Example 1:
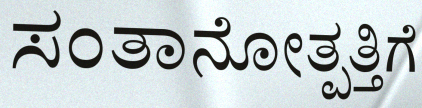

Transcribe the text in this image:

ಸಂತಾನೋತ್ಪತ್ತಿಗೆ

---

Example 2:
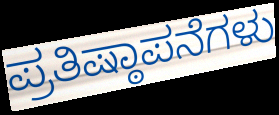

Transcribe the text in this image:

ಪ್ರತಿಷ್ಠಾಪನೆಗಳು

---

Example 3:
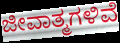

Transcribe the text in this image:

ಜೀವಾತ್ಮಗಳಿವೆ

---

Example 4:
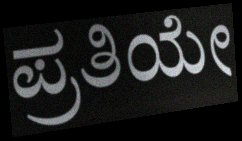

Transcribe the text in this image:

ಪ್ರತಿಯೇ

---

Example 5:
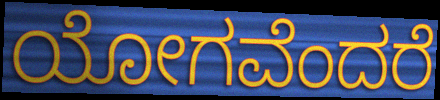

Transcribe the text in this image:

ಯೋಗವೆಂದರೆ